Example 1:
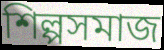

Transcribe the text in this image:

শিল্পসমাজ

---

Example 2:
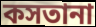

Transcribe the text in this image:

কসতানা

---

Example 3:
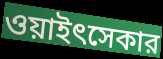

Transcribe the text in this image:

ওয়াইৎসেকার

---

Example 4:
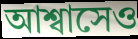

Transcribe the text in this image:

আশ্বাসেও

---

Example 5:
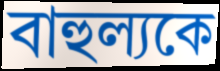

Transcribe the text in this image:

বাহুল্যকে